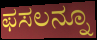
ಫಸಲನ್ನೂ